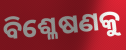
ବିଶ୍ଳେଷଣକୁ